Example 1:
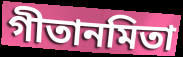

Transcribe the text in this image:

গীতানমিতা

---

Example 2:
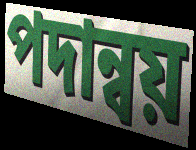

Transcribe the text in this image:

পদান্বয়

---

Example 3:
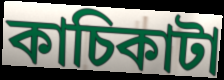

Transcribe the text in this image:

কাচিকাটা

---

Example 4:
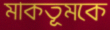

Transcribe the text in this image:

মাকতূমকে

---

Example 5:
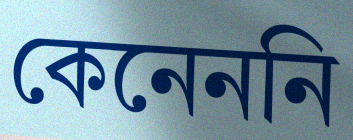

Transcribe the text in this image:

কেনেননি